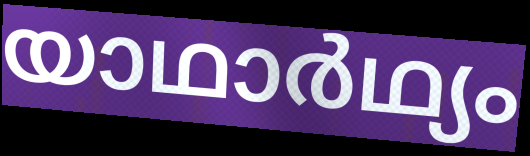
യാഥാർഥ്യം